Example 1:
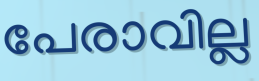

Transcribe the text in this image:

പേരാവില്ല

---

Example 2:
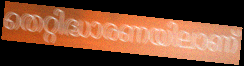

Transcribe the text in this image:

തെറ്റിദ്ധാരണയിലാണ്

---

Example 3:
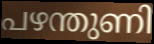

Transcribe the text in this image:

പഴന്തുണി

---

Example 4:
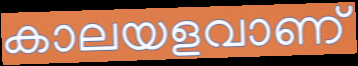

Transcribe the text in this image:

കാലയളവാണ്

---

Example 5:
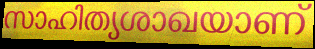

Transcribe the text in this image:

സാഹിത്യശാഖയാണ്